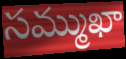
సమ్ముఖా